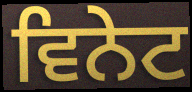
ਵਿਨੇਟ